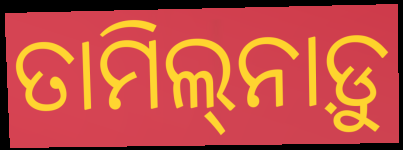
ତାମିଲ୍‌ନାଡ଼ୁ